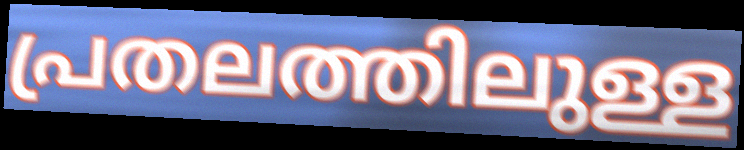
പ്രതലത്തിലുള്ള